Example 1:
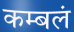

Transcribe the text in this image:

कम्बलं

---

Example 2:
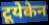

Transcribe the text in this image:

टूयेकेन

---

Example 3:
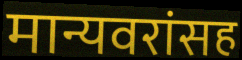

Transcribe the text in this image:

मान्यवरांसह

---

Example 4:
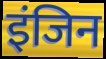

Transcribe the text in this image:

इंजिन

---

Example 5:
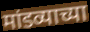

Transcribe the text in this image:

मांडव्याच्या